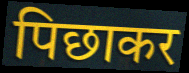
पिछाकर